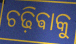
ଚଢ଼ିଵାକୁ